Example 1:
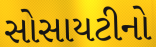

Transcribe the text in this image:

સોસાયટીનો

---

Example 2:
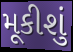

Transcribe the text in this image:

મૂકીશું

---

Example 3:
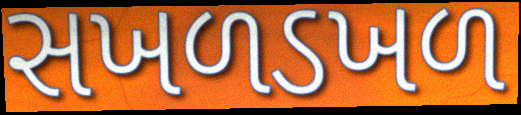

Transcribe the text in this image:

સખળડખળ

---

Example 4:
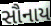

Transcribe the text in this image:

સૌનાય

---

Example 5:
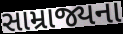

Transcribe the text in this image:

સામ્રાજ્યના